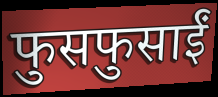
फुसफुसाईं